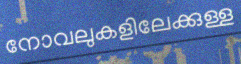
നോവലുകളിലേക്കുള്ള